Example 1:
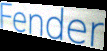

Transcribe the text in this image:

Fender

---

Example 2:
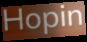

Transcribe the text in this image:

Hopin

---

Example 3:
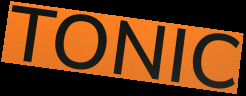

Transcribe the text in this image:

TONIC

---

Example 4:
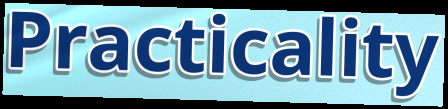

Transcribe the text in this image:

Practicality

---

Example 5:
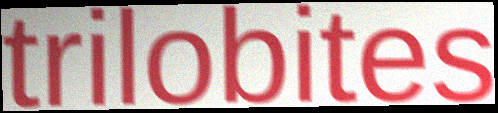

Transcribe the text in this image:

trilobites